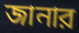
জানার